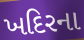
ખદિરના